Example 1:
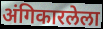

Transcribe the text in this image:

अंगिकारलेला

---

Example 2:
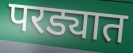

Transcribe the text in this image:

परड्यात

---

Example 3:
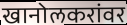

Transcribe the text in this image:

खानोलकरांवर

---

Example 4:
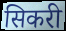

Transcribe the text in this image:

सिकरी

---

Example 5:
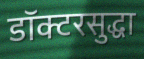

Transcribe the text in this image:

डॉक्टरसुद्धा